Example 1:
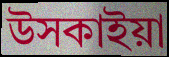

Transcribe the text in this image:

উসকাইয়া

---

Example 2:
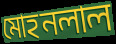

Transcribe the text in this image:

মোহনলাল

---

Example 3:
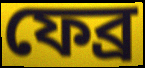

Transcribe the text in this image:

ফেব্র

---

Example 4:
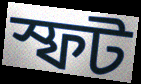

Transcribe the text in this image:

স্ফট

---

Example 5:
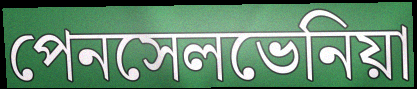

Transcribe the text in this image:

পেনসেলভেনিয়া